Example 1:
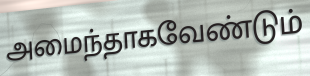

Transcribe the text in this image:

அமைந்தாகவேண்டும்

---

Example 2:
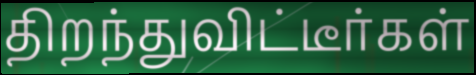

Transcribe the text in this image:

திறந்துவிட்டீர்கள்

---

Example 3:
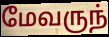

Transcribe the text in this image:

மேவருந்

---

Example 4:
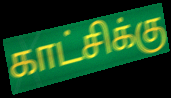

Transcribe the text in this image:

காட்சிக்கு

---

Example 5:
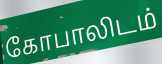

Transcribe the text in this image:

கோபாலிடம்